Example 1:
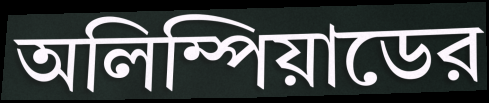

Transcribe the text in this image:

অলিম্পিয়াডের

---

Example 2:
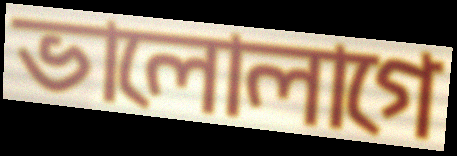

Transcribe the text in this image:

ভালোলাগে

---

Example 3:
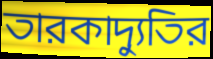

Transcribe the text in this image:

তারকাদ্যুতির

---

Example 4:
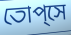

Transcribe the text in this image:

তোপ্‌সে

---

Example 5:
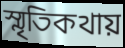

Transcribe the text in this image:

স্মৃতিকথায়